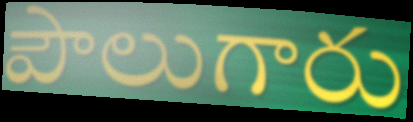
పౌలుగారు